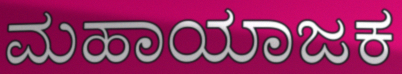
ಮಹಾಯಾಜಕ